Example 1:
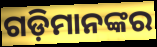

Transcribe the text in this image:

ଗଡ଼ିମାନଙ୍କର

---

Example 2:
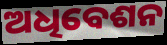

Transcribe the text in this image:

ଅଧିବେଶନ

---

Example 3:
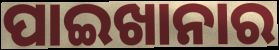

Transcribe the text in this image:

ପାଇଖାନାର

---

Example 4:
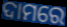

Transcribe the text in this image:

ଦାମରେ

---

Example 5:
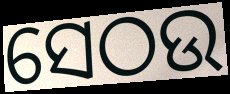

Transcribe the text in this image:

ସେଠଉ